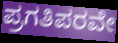
ಪ್ರಗತಿಪರವೇ